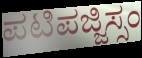
ಪಟಿಪಜ್ಜಿಸ್ಸಂ